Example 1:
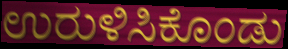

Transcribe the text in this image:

ಉರುಳಿಸಿಕೊಂಡು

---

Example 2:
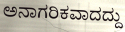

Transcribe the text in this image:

ಅನಾಗರಿಕವಾದದ್ದು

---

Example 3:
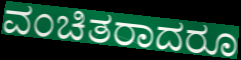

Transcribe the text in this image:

ವಂಚಿತರಾದರೂ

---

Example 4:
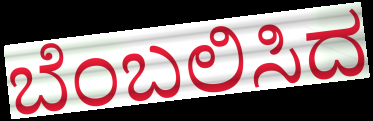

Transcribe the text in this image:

ಬೆಂಬಲಿಸಿದ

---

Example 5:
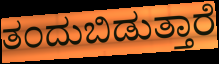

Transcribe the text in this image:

ತಂದುಬಿಡುತ್ತಾರೆ